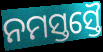
ନମସ୍ତସ୍ତୈ